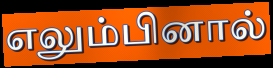
எலும்பினால்